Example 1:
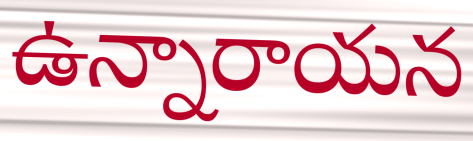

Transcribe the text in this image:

ఉన్నారాయన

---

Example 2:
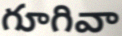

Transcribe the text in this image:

గూగివా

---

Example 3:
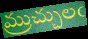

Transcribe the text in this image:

మ్రుచ్చులఁ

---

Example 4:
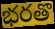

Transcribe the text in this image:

భరతొ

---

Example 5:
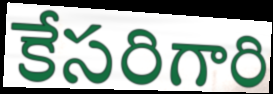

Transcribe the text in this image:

కేసరిగారి